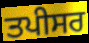
ਤਪੀਸਰ